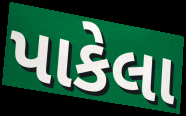
પાકેલા